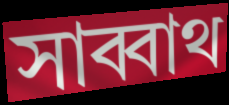
সাব্বাথ